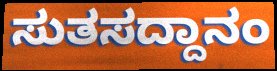
ಸುತಸದ್ದಾನಂ